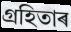
গ্ৰহিতাৰ